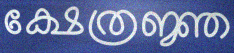
ക്ഷേത്രജ്ഞ